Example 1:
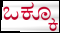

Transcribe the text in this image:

ಒಕ್ಕೂ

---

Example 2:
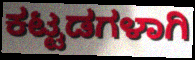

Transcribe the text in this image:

ಕಟ್ಟಡಗಳಾಗಿ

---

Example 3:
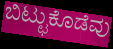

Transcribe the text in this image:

ಬಿಟ್ಟುಕೊಡೆವು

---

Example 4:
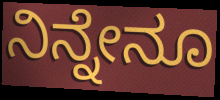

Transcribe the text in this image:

ನಿನ್ನೇನೂ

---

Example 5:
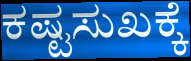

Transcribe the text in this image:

ಕಷ್ಟಸುಖಕ್ಕೆ